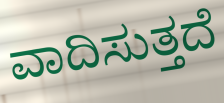
ವಾದಿಸುತ್ತದೆ